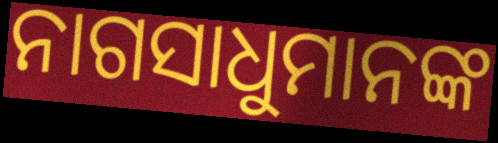
ନାଗସାଧୁମାନଙ୍କ